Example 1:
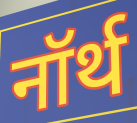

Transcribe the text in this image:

नॉर्थ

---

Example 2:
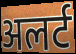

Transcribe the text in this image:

अलर्ट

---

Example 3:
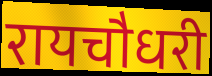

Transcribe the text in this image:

रायचौधरी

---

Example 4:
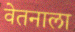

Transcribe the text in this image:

वेतनाला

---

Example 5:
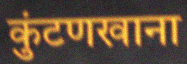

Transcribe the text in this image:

कुंटणखाना